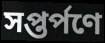
সপ্তর্পণে